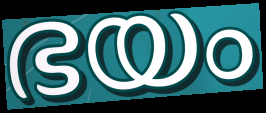
ഭയം